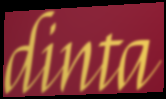
dinta